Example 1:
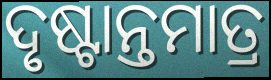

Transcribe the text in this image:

ଦୃଷ୍ଟାନ୍ତମାତ୍ର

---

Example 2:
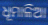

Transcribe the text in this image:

ଧୂମାଳିଆ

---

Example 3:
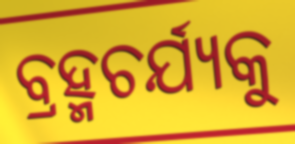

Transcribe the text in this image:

ବ୍ରହ୍ମଚର୍ଯ୍ୟକୁ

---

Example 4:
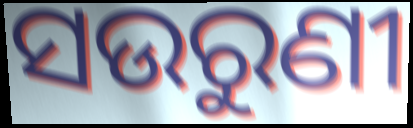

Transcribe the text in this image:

ସଉରୁଣୀ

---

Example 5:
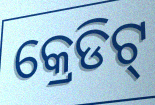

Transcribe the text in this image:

କ୍ରେଡିଟ୍